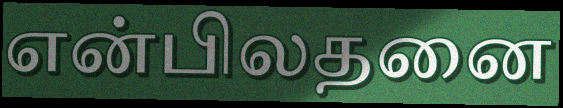
என்பிலதனை